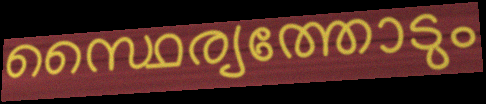
സ്ഥൈര്യത്തോടും